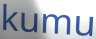
kumu